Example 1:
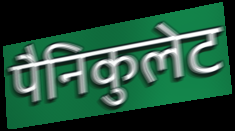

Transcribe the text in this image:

पैनिकुलेट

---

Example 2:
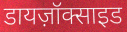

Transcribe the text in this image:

डायज़ॉक्साइड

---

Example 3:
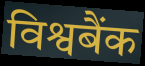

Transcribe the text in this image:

विश्वबैंक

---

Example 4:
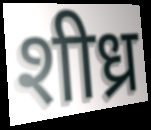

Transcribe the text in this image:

शीध्र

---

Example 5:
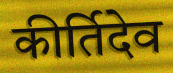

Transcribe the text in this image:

कीर्तिदेव